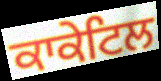
ਕਾਕੇਟਿਲ